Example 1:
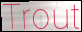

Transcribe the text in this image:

Trout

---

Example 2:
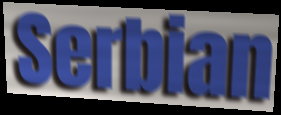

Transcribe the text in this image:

Serbian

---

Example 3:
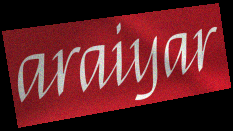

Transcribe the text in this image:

araiyar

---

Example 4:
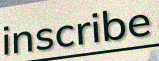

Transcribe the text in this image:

inscribe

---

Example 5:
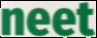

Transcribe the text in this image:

neet